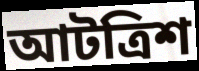
আটত্রিশ